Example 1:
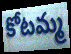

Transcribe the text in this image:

కోటమ్మ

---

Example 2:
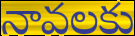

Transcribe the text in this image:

నావలకు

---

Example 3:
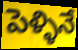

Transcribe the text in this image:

పెళ్ళినే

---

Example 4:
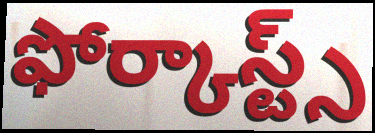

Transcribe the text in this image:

ఫోర్కాస్ట్స్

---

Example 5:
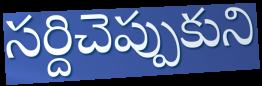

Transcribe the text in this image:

సర్దిచెప్పుకుని